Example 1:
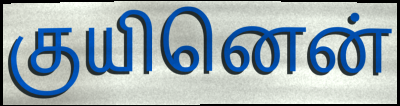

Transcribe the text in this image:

குயினென்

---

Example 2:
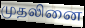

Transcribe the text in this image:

முதலினை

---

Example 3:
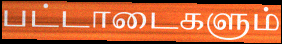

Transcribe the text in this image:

பட்டாடைகளும்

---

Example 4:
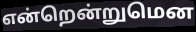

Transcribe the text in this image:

என்றென்றுமென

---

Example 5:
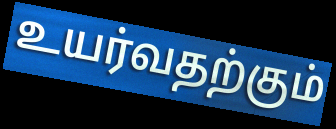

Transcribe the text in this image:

உயர்வதற்கும்